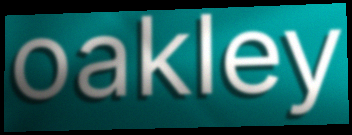
oakley